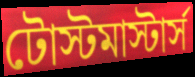
টোস্টমাস্টার্স